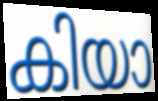
കിയാ